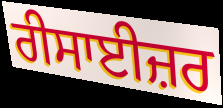
ਰੀਸਾਈਜ਼ਰ